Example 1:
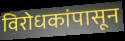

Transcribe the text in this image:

विरोधकांपासून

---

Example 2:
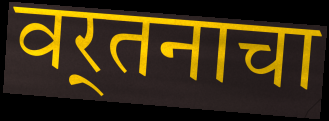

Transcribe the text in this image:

वर्तनाचा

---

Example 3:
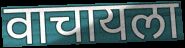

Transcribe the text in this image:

वाचायला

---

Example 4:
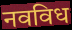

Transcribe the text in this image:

नवविध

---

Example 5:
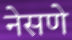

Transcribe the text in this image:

नेसणे